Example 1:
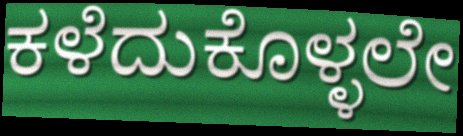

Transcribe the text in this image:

ಕಳೆದುಕೊಳ್ಳಲೇ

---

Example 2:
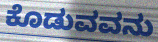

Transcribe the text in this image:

ಕೊಡುವವನು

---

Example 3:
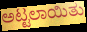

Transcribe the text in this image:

ಅಟ್ಟಲಾಯಿತು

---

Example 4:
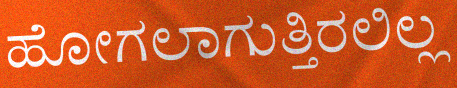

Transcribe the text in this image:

ಹೋಗಲಾಗುತ್ತಿರಲಿಲ್ಲ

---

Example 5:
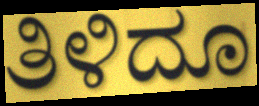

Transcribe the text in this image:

ತಿಳಿದೂ